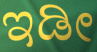
ಇಡೀ